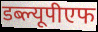
डब्ल्यूपीएफ